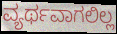
ವ್ಯರ್ಥವಾಗಲಿಲ್ಲ